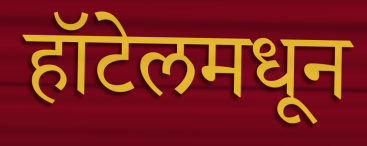
हॉटेलमधून